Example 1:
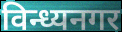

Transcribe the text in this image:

विन्ध्यनगर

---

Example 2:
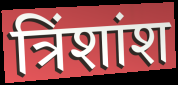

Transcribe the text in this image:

त्रिंशांश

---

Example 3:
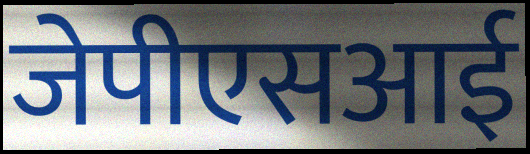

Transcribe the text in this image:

जेपीएसआई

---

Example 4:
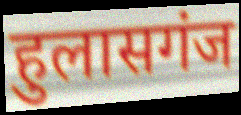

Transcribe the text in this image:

हुलासगंज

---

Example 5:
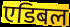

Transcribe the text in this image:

एडिबल